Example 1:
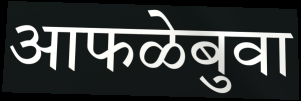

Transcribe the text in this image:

आफळेबुवा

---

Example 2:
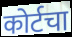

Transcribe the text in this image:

कोर्टचा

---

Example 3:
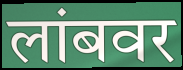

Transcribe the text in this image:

लांबवर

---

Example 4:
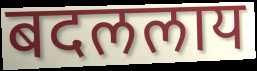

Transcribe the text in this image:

बदललाय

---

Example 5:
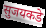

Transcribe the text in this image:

सुजयकडे